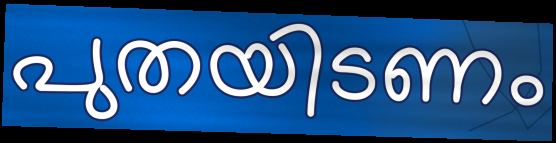
പുതയിടണം